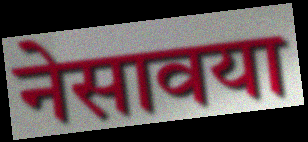
नेसावया